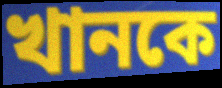
খানকে